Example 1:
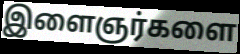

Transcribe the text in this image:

இளைஞர்களை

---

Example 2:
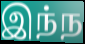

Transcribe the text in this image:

இந்ந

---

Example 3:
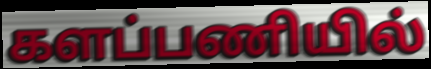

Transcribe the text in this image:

களப்பணியில்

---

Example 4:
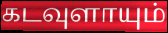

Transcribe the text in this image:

கடவுளாயும்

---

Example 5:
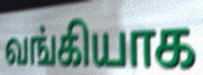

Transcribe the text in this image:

வங்கியாக